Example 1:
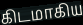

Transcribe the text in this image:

கிடமாகிய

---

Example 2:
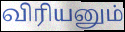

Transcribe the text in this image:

விரியனும்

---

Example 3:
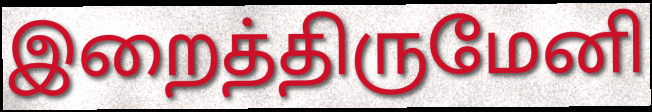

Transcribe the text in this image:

இறைத்திருமேனி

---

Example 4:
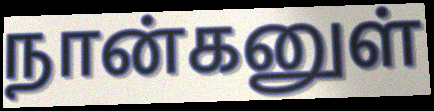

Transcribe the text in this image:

நான்கனுள்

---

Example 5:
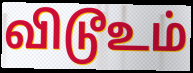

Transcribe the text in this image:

விடூஉம்